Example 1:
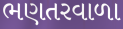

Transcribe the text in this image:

ભણતરવાળા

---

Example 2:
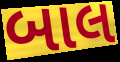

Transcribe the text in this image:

બાલ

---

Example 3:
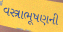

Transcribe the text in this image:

વસ્ત્રાભૂષણની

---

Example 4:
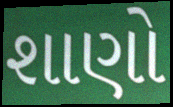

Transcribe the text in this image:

શાણો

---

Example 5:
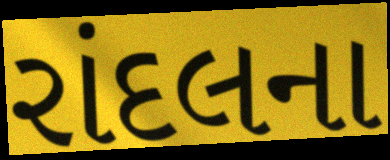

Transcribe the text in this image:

રાંદલના